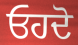
ਓਹਦੋ